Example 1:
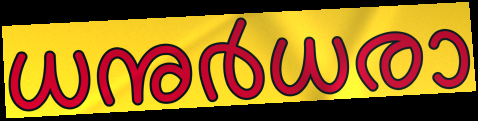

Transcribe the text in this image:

ധനുർധരാ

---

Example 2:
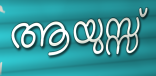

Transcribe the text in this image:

ആയുസ്സ്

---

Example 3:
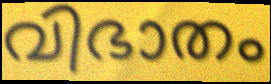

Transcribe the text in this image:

വിഭാതം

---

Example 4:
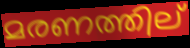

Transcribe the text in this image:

മരണത്തില്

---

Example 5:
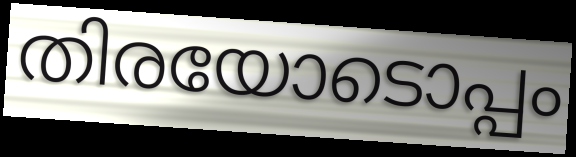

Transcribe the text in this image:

തിരയോടൊപ്പം